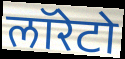
लॉरेटो